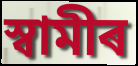
স্বামীৰ